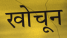
खोचून